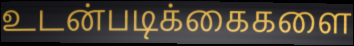
உடன்படிக்கைகளை